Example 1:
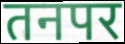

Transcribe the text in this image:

तनपर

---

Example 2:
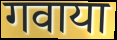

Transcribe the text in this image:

गवाया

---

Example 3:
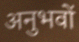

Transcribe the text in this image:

अनुभवों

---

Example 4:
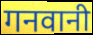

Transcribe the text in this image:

गनवानी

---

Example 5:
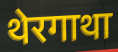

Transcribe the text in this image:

थेरगाथा